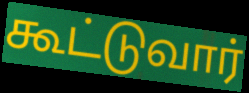
கூட்டுவார்